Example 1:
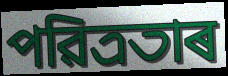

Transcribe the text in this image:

পৱিত্ৰতাৰ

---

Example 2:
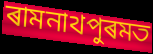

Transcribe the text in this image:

ৰামনাথপুৰমত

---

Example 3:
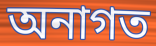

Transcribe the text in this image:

অনাগত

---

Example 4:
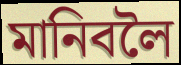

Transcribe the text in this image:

মানিবলৈ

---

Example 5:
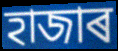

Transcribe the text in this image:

হাজাৰ